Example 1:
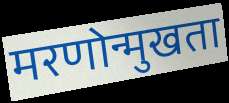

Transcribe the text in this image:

मरणोन्मुखता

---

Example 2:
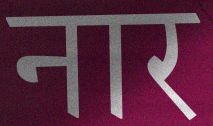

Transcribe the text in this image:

नार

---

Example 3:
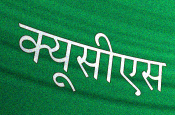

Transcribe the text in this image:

क्यूसीएस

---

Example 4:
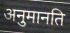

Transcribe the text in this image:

अनुमानति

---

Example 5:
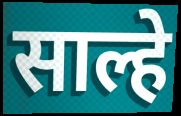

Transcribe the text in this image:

साल्हे